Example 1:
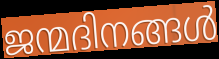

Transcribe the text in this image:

ജന്മദിനങ്ങൾ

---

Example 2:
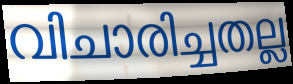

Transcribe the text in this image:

വിചാരിച്ചതല്ല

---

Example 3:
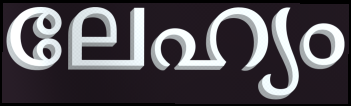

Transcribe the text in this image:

ലേഹ്യം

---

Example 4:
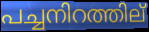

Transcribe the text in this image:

പച്ചനിറത്തില്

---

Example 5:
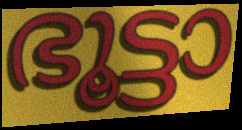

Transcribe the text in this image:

ഭൂട്ടാ